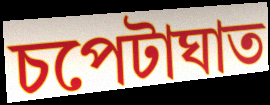
চপেটাঘাত